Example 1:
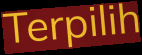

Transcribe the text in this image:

Terpilih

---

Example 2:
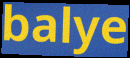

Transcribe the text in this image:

balye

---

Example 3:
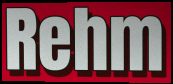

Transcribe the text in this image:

Rehm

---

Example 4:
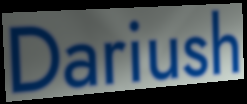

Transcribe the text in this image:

Dariush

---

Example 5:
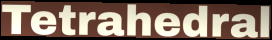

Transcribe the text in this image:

Tetrahedral